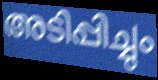
അടിപ്പിച്ചും